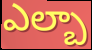
ఎల్బా